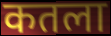
कतला